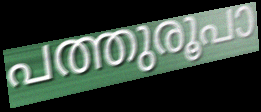
പത്തുരൂപാ